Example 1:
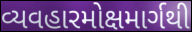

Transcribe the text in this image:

વ્યવહારમોક્ષમાર્ગથી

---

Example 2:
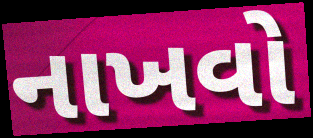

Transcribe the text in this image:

નાખવો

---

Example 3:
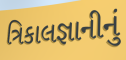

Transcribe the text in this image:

ત્રિકાલજ્ઞાનીનું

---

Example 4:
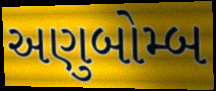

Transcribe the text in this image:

અણુબોમ્બ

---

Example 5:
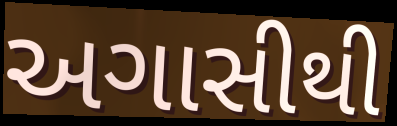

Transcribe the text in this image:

અગાસીથી